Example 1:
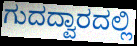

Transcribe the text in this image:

ಗುದದ್ವಾರದಲ್ಲಿ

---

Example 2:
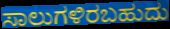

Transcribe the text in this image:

ಸಾಲುಗಳಿರಬಹುದು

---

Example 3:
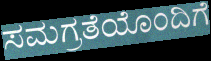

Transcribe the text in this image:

ಸಮಗ್ರತೆಯೊಂದಿಗೆ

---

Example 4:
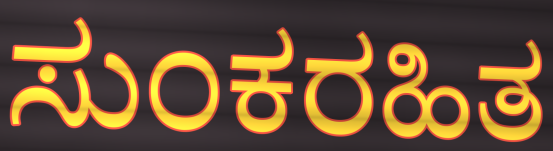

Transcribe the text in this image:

ಸುಂಕರಹಿತ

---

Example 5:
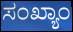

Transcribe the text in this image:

ಸಂಖ್ಯಾಂ